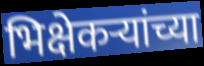
भिक्षेकऱ्यांच्या